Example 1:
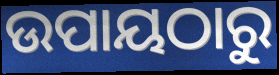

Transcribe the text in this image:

ଉପାୟଠାରୁ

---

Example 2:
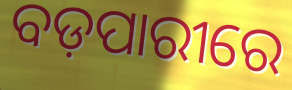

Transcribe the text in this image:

ବଡ଼ପାରୀରେ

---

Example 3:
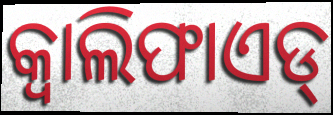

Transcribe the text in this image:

କ୍ୱାଲିଫାଏଡ୍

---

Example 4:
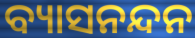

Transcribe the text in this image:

ବ୍ୟାସନନ୍ଦନ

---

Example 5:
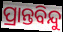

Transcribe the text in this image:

ପ୍ରାନ୍ତବିନ୍ଦୁ